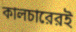
কালচারেরই